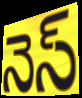
నెస్